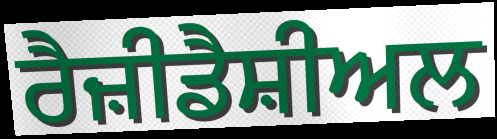
ਰੈਜ਼ੀਡੈਸ਼ੀਅਲ